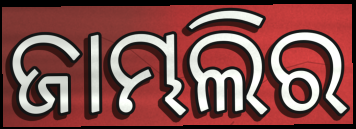
ଜାମ୍ଭଲିର